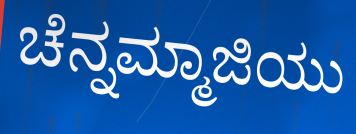
ಚೆನ್ನಮ್ಮಾಜಿಯು